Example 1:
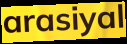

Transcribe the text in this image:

arasiyal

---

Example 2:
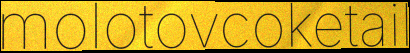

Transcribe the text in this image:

molotovcoketail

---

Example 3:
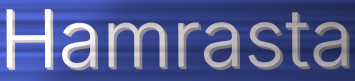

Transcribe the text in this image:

Hamrasta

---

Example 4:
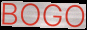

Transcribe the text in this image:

BOGO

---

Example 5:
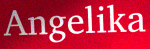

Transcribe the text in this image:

Angelika